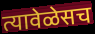
त्यावेळेसच